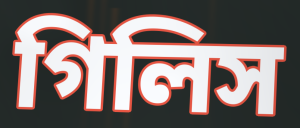
গিলিস